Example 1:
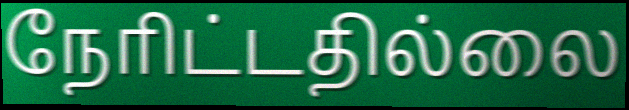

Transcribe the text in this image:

நேரிட்டதில்லை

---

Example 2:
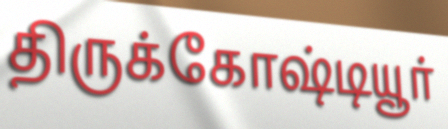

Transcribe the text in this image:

திருக்கோஷ்டியூர்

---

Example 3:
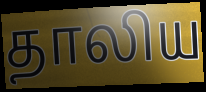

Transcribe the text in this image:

தாலிய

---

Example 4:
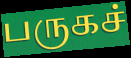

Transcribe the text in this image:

பருகச்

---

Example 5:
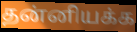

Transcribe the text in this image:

தன்னியக்க